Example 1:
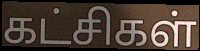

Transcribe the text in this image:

கட்சிகள்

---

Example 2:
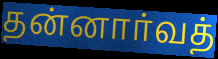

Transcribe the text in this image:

தன்னார்வத்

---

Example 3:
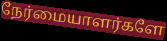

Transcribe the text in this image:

நேர்மையாளர்களே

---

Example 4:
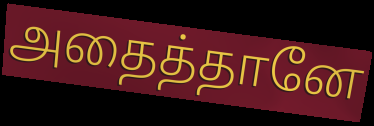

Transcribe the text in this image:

அதைத்தானே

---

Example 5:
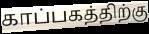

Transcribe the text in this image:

காப்பகத்திற்கு